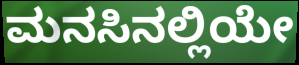
ಮನಸಿನಲ್ಲಿಯೇ